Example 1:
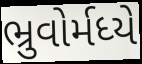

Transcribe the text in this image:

ભ્રુવોર્મધ્યે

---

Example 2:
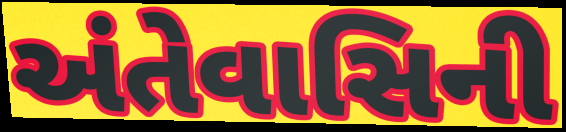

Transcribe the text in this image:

અંતેવાસિની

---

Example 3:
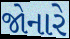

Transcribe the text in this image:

જોનારે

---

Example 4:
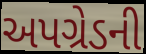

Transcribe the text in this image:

અપગ્રેડની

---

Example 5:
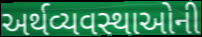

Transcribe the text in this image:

અર્થવ્યવસ્થાઓની